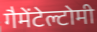
गैमेंटेल्टोमी